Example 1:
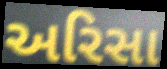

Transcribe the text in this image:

અરિસા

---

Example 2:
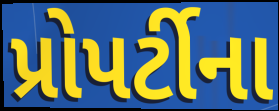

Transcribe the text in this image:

પ્રોપર્ટીના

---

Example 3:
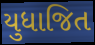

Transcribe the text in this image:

યુધાજિત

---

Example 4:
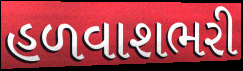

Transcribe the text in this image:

હળવાશભરી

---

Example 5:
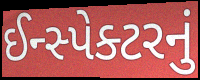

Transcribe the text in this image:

ઈન્સ્પેક્ટરનું